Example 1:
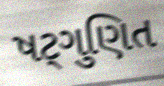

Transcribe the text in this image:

ષટ્ગુણિત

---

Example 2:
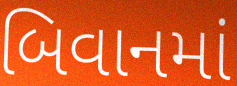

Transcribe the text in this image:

બિવાનમાં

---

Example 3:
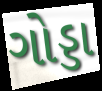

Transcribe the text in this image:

ગોડ્ડા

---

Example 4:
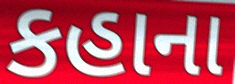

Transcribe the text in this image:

કહાના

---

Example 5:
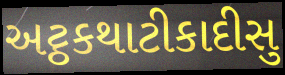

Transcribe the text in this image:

અટ્ઠકથાટીકાદીસુ